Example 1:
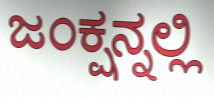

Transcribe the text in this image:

ಜಂಕ್ಷನ್ನಲ್ಲಿ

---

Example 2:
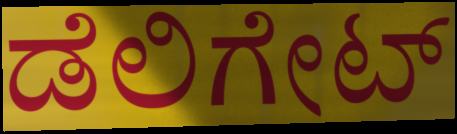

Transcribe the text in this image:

ಡೆಲಿಗೇಟ್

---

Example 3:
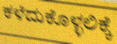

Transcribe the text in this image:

ಕಳೆದುಕೊಳ್ಳಲಿಕ್ಕೆ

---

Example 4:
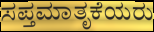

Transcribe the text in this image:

ಸಪ್ತಮಾತೃಕೆಯರು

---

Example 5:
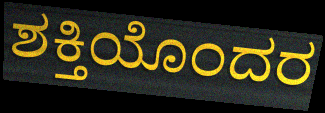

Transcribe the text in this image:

ಶಕ್ತಿಯೊಂದರ